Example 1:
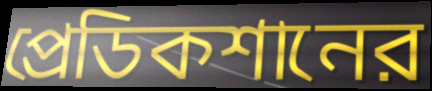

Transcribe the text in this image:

প্রেডিকশানের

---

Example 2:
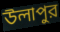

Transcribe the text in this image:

উলাপুর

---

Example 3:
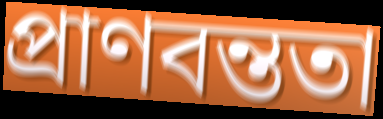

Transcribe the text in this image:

প্রাণবন্ততা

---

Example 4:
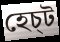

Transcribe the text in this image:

হেচ্ট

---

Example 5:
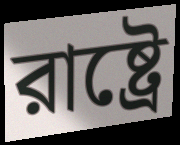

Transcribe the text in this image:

রাষ্ট্রে